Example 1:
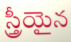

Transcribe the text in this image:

స్త్రీయైన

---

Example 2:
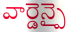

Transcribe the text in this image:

వార్డెన్పై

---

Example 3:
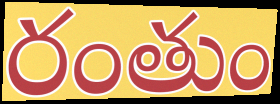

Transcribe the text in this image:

రంతుం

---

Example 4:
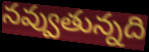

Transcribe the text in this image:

నవ్వుతున్నది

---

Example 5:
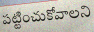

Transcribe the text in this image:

పట్టించుకోవాలని